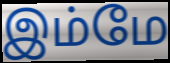
இம்மே